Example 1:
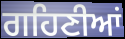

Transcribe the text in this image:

ਗਹਿਣੀਆਂ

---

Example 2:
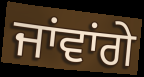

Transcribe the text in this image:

ਜਾਂਵਾਂਗੇ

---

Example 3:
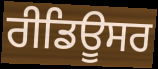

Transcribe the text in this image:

ਰੀਡਿਊਸਰ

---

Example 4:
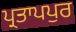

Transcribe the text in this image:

ਪ੍ਰਤਾਪਪੁਰ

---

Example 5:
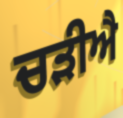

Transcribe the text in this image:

ਚੜੀਐ